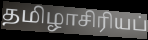
தமிழாசிரியப்